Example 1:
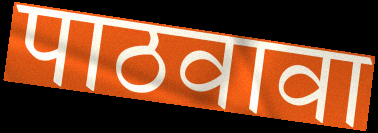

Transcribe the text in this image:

पाठवावा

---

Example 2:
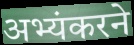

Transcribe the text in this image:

अभ्यंकरने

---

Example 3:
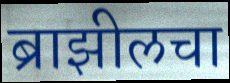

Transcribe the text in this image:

ब्राझीलचा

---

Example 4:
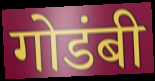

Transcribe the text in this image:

गोडंबी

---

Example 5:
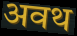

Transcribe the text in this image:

अवथ